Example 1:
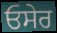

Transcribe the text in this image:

ਓਸੇਰ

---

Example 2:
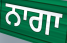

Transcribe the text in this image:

ਨਾਗਾ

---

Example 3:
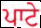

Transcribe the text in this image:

ਪਾਟੇ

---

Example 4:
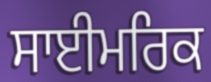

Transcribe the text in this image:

ਸਾਈਮਰਿਕ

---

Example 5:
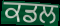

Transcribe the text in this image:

ਕਡਲ